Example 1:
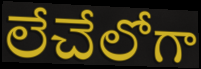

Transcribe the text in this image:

లేచేలోగా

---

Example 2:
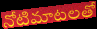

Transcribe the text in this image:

నోటిమాటలతో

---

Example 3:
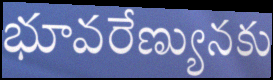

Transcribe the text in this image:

భూవరేణ్యునకు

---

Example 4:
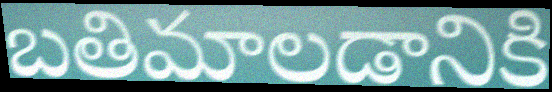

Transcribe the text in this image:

బతిమాలడానికి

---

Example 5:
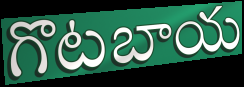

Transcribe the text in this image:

గొటబాయ